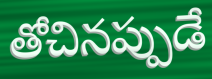
తోచినప్పుడే